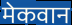
मेकवान